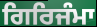
ਗਿਰਿਜੰਮਾ